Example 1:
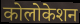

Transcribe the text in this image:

कोलोकेशन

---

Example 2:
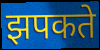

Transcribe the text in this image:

झपकते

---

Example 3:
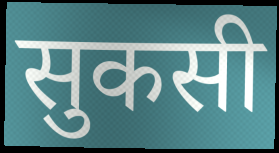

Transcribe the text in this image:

सुकसी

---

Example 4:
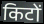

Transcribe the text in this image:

किटों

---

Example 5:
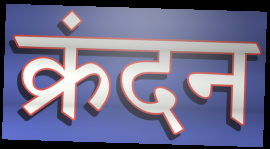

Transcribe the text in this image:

क्रंदन